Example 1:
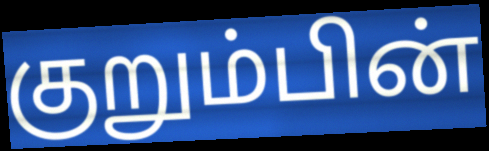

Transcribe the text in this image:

குறும்பின்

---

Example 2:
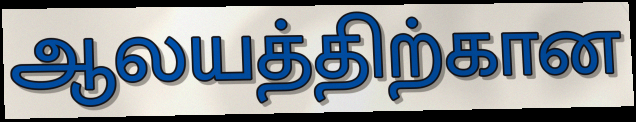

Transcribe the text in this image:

ஆலயத்திற்கான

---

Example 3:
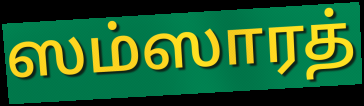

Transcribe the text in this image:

ஸம்ஸாரத்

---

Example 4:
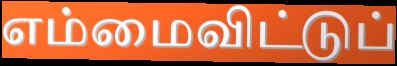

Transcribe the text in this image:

எம்மைவிட்டுப்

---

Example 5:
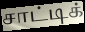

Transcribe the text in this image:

சாட்டிக்